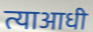
त्याआधी